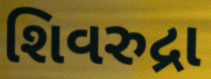
શિવરુદ્રા